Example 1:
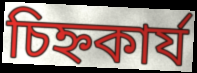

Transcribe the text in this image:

চিহ্নকার্য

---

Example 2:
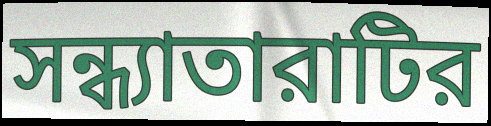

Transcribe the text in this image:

সন্ধ্যাতারাটির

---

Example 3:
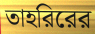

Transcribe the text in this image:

তাহরিরের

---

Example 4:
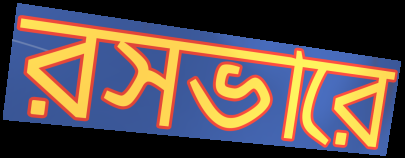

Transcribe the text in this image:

রসভারে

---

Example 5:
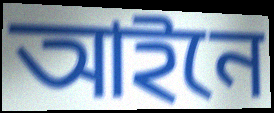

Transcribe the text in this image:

আইনে